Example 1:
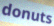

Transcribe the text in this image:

donuts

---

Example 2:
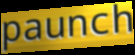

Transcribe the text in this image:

paunch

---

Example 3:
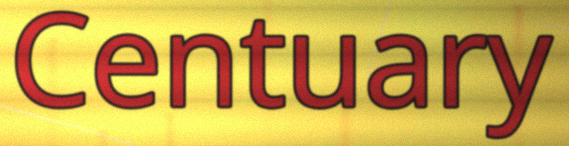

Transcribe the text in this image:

Centuary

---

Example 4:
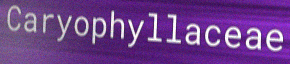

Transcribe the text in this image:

Caryophyllaceae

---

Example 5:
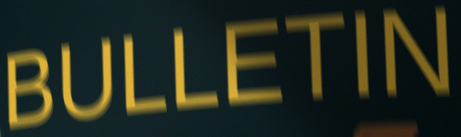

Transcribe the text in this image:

BULLETIN